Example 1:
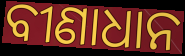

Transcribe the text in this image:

ବୀଣାଧାନ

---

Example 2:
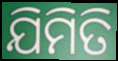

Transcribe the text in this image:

ଯିମିତି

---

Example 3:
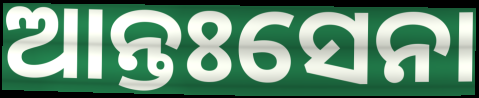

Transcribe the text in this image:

ଆନ୍ତଃସେନା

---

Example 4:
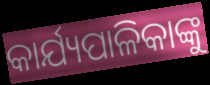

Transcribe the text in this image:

କାର୍ଯ୍ୟପାଳିକାଙ୍କୁ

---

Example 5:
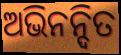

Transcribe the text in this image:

ଅଭିନନ୍ଦିତ